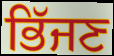
ਭਿੱਜਣ